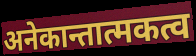
अनेकान्तात्मकत्व